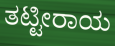
ತಟ್ಟೀರಾಯ